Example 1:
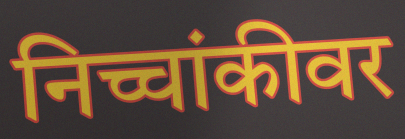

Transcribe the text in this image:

निच्चांकीवर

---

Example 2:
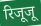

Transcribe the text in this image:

रिजूजू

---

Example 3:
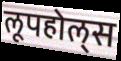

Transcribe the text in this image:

लूपहोल्स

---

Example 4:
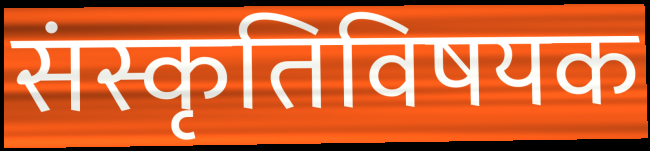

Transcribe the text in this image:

संस्कृतिविषयक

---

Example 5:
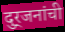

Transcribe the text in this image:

दुर्जनांची